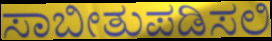
ಸಾಬೀತುಪಡಿಸಲಿ